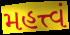
મહત્ત્વં